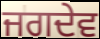
ਜਗਦੇਵ